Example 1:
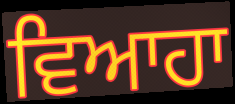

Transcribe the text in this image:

ਵਿਆਹਾ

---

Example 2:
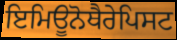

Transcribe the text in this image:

ਇਮਿਊਨੋਥੈਰੇਪਿਸਟ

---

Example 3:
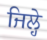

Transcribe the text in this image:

ਜਿਲ੍ਹੇ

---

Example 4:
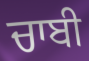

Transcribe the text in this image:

ਚਾਬੀ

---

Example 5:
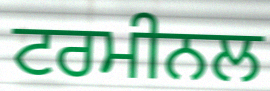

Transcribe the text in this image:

ਟਰਮੀਨਲ